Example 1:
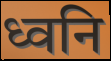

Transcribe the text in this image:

ध्‍वनि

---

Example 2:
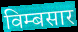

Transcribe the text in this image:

विम्बसार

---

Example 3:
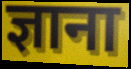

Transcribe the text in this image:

ज्ञाना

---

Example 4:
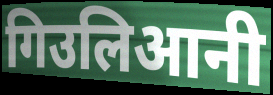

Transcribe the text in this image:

गिउलिआनी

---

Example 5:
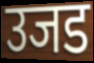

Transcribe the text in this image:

उजड